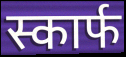
स्कार्फ